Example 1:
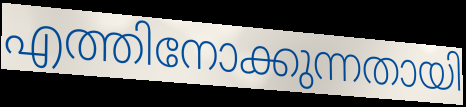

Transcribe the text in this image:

എത്തിനോക്കുന്നതായി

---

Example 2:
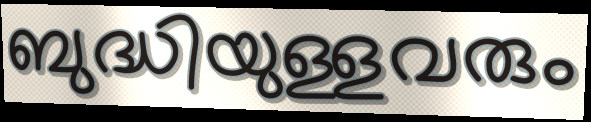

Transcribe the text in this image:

ബുദ്ധിയുള്ളവരും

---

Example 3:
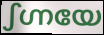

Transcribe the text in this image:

ഽഗ്നയേ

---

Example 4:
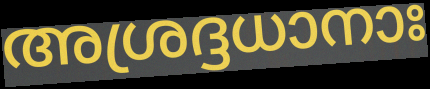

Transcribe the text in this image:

അശ്രദ്ദധാനാഃ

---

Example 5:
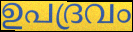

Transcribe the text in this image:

ഉപദ്രവം